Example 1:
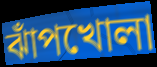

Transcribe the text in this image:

ঝাঁপখোলা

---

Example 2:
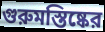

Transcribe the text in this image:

গুরুমস্তিষ্কের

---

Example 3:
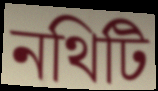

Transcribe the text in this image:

নথিটি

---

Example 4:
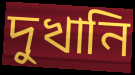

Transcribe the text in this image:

দুখানি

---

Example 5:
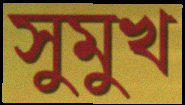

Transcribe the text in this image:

সুমুখ